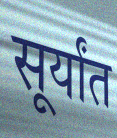
सूर्यांत